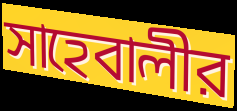
সাহেবালীর